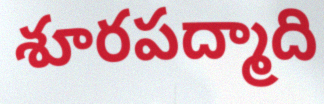
శూరపద్మాది